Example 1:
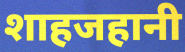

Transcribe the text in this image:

शाहजहानी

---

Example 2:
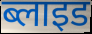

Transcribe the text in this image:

ब्लाइड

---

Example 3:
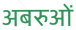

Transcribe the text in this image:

अबरुओं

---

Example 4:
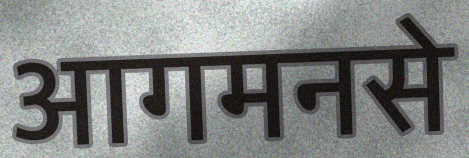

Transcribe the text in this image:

आगमनसे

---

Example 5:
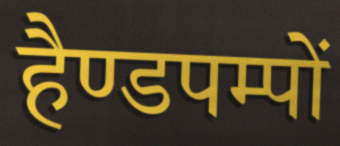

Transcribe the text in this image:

हैण्डपम्पों